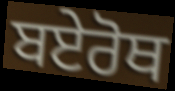
ਬਏਰੋਥ